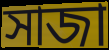
সাজা